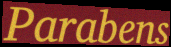
Parabens